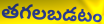
తగలబడటం